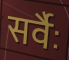
सर्वैः